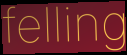
felling